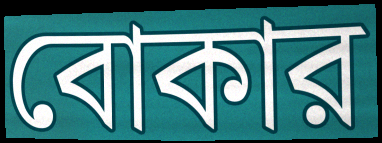
বোকার